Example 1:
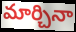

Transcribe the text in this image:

మార్చినా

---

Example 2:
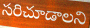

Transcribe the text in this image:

సరిచూడాలని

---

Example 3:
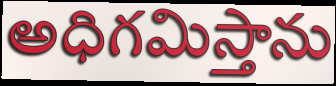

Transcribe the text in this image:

అధిగమిస్తాను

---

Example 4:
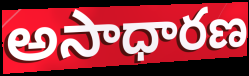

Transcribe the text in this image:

అసాధారణ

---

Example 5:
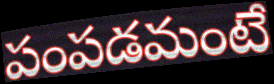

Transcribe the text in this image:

పంపడమంటే